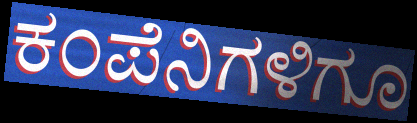
ಕಂಪೆನಿಗಳಿಗೂ